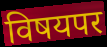
विषयपर